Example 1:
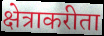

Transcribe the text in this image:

क्षेत्राकरीता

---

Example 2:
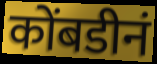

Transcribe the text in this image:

कोंबडीनं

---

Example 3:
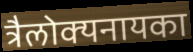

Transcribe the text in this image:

त्रैलोक्यनायका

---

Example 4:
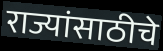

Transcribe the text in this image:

राज्यांसाठीचे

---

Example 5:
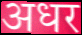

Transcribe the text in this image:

अधर